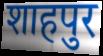
शाहपुर